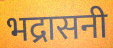
भद्रासनी